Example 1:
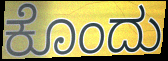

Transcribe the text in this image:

ಕೊಂದು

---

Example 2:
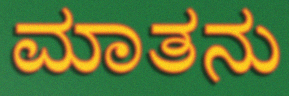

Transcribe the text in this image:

ಮಾತನು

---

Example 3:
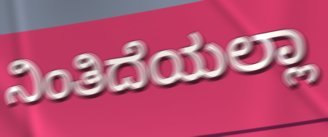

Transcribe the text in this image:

ನಿಂತಿದೆಯಲ್ಲಾ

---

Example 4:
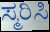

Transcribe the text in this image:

ಸ್ಮರಿಸಿ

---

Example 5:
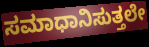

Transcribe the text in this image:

ಸಮಾಧಾನಿಸುತ್ತಲೇ